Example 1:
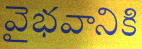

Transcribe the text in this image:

వైభవానికి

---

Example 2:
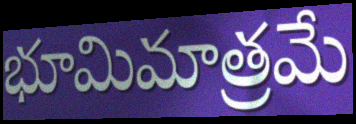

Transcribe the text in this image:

భూమిమాత్రమే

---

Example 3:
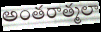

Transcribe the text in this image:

అంతరాత్మలా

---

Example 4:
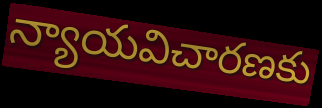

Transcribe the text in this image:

న్యాయవిచారణకు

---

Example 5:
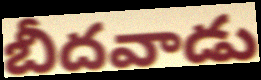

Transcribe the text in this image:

బీదవాడు